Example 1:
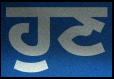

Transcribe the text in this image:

ਹੁਣ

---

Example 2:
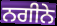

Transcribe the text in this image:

ਨਗੀਨੇ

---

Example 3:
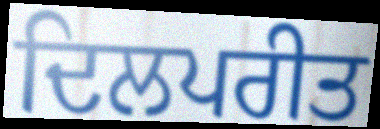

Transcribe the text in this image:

ਦਿਲਪਰੀਤ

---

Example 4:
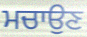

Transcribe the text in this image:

ਮਚਾਉਣ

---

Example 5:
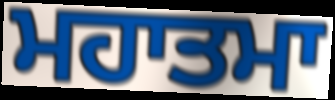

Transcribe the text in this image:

ਮਹਾਤਮਾ